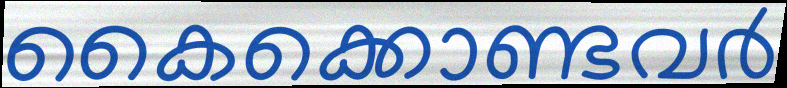
കൈക്കൊണ്ടവർ